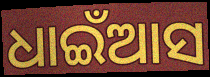
ଧାଇଁଆସ